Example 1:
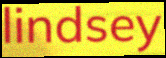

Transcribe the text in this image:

lindsey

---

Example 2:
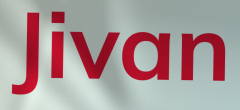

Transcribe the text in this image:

Jivan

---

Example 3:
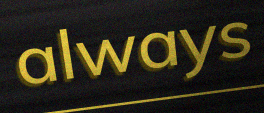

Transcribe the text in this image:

always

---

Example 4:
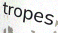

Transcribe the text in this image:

tropes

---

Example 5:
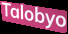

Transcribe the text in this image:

Talobyo